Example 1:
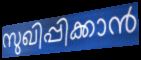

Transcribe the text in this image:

സുഖിപ്പിക്കാൻ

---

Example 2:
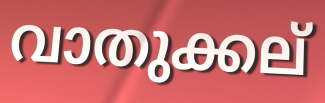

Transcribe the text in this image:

വാതുക്കല്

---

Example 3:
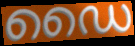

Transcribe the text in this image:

ഡൈ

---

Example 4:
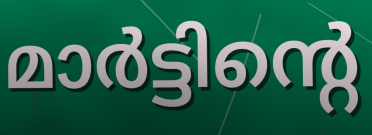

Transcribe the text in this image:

മാർട്ടിന്റെ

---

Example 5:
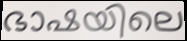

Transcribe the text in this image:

ഭാഷയിലെ